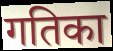
गतिका